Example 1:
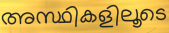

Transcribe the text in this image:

അസ്ഥികളിലൂടെ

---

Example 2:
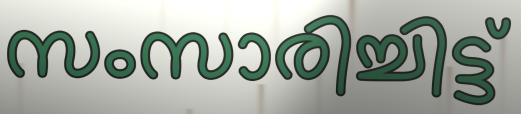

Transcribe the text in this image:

സംസാരിച്ചിട്ട്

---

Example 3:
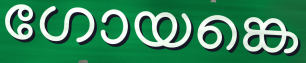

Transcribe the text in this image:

ഗോയങ്കെ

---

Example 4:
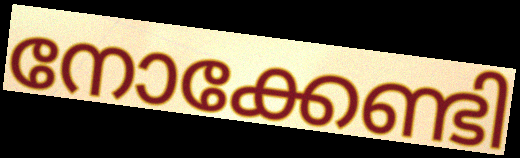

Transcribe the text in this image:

നോക്കേണ്ടി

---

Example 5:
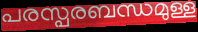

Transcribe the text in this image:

പരസ്പരബന്ധമുള്ള